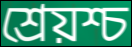
শ্রেয়শ্চ